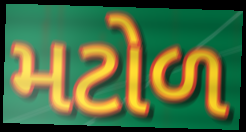
મટોળ